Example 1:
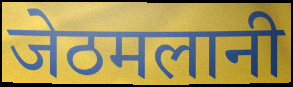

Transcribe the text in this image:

जेठमलानी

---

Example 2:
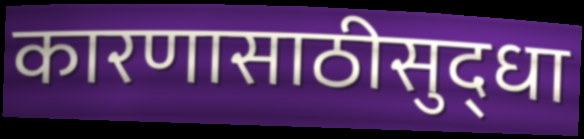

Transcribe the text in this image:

कारणासाठीसुद्धा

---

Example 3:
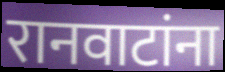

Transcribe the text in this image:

रानवाटांना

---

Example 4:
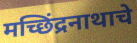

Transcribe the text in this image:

मच्छिंद्रनाथाचे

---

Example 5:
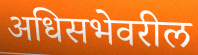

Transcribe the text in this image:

अधिसभेवरील